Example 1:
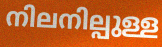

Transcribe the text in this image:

നിലനില്പുള്ള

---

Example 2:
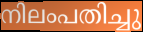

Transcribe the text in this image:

നിലംപതിച്ചു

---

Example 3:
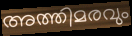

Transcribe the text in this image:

അത്തിമരവും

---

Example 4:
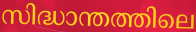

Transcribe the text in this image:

സിദ്ധാന്തത്തിലെ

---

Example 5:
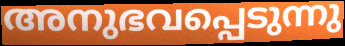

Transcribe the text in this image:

അനുഭവപ്പെടുന്നു